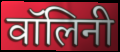
वॉलिनी